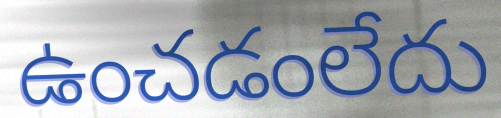
ఉంచడంలేదు